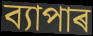
ব্যাপাৰ